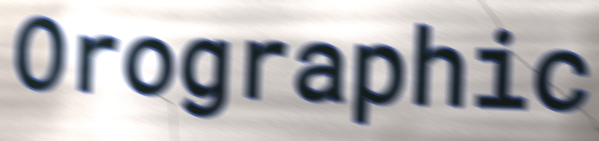
Orographic